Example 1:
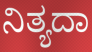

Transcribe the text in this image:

ನಿತ್ಯದಾ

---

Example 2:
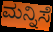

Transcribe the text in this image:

ಮನ್ನಿಸೆ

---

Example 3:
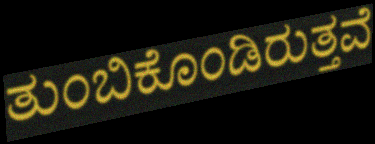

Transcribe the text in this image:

ತುಂಬಿಕೊಂಡಿರುತ್ತವೆ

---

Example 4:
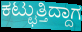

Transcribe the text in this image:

ಕಟ್ಟುತ್ತಿದ್ದಾಗ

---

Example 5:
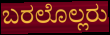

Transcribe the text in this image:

ಬರಲೊಲ್ಲರು